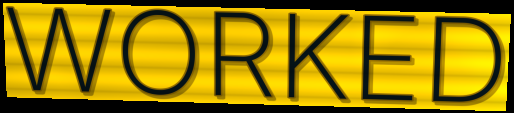
WORKED